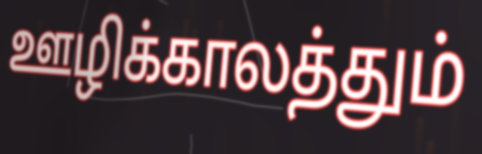
ஊழிக்காலத்தும்